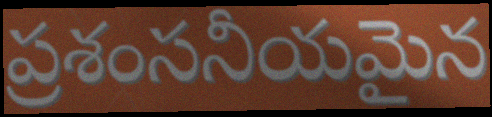
ప్రశంసనీయమైన